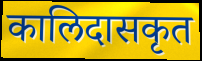
कालिदासकृत